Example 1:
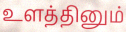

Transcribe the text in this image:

உளத்தினும்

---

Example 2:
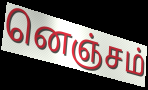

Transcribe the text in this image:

னெஞ்சம்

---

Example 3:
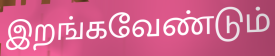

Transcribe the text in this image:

இறங்கவேண்டும்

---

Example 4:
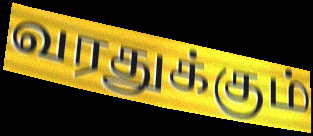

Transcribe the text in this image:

வரதுக்கும்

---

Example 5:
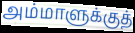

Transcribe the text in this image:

அம்மாளுக்குத்